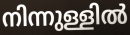
നിന്നുള്ളിൽ